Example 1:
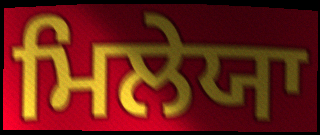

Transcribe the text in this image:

ਮਿਲੇਯਾ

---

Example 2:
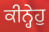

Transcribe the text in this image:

ਕੀਨ੍ਹੇਹੁ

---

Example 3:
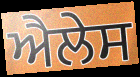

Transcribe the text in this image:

ਐਲੇਸ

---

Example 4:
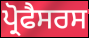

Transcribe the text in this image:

ਪ੍ਰੋਫੈਸਰਸ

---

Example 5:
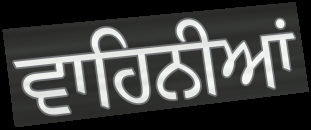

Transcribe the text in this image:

ਵਾਹਿਨੀਆਂ